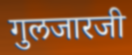
गुलजारजी